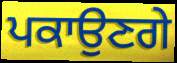
ਪਕਾਉਣਗੇ